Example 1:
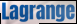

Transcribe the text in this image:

Lagrange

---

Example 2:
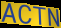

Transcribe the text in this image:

ACTN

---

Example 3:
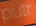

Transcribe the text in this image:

putr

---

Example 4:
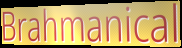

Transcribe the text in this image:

Brahmanical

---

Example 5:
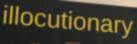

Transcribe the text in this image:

illocutionary